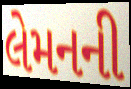
લેમનની